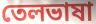
তেলভাষা